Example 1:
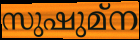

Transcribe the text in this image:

സുഷുമ്ന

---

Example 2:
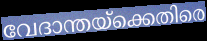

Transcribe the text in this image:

വേദാന്തയ്ക്കെതിരെ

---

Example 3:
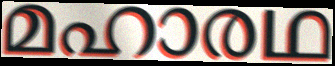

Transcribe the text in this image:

മഹാരഥ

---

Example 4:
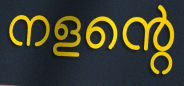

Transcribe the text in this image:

നളന്റെ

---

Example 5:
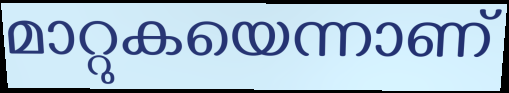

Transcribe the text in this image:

മാറ്റുകയെന്നാണ്